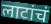
लाटांचं